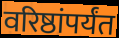
वरिष्ठांपर्यंत